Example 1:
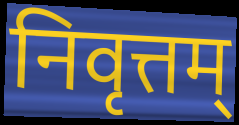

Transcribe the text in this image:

निवृत्तम्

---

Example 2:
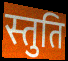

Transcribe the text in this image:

स्तुति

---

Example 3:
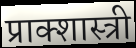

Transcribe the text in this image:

प्राक्शास्त्री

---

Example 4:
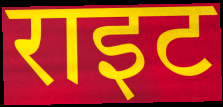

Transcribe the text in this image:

राइट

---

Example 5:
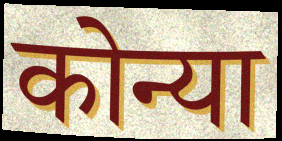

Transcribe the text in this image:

कोन्या